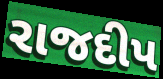
રાજદીપ